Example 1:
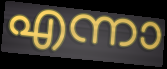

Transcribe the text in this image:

എന്നാ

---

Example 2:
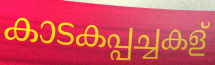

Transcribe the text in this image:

കാടകപ്പച്ചകള്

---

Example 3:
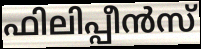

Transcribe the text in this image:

ഫിലിപ്പീൻസ്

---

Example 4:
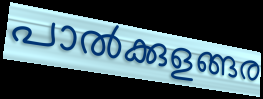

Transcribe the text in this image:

പാൽക്കുളങ്ങര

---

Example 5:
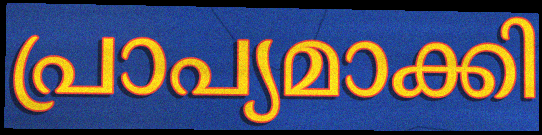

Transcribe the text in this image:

പ്രാപ്യമാക്കി